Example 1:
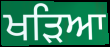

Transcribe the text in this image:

ਖੜਿਆ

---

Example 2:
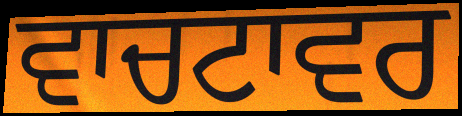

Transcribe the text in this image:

ਵਾਚਟਾਵਰ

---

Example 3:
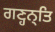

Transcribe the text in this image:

ਗਣ੍ਹਨ੍ਤਿ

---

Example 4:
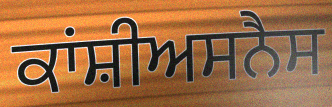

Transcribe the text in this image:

ਕਾਂਸ਼ੀਅਸਨੈਸ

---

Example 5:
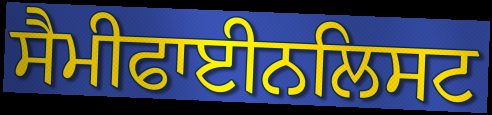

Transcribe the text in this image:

ਸੈਮੀਫਾਈਨਲਿਸਟ